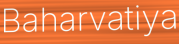
Baharvatiya